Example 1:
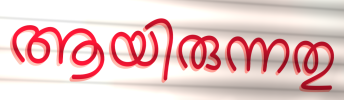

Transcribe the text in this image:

ആയിരുന്നതു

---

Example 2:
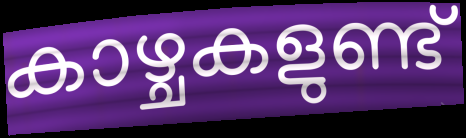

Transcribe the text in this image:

കാഴ്ചകളുണ്ട്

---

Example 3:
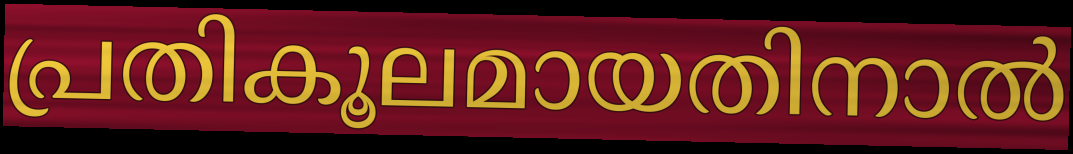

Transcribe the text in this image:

പ്രതികൂലമായതിനാൽ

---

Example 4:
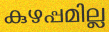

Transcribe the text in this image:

കുഴപ്പമില്ല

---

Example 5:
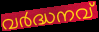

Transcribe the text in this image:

വർദ്ധനവ്